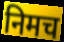
निमच